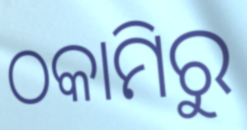
ଠକାମିରୁ